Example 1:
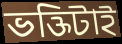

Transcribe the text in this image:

ভক্তিটাই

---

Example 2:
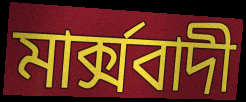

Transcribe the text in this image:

মার্ক্সবাদী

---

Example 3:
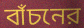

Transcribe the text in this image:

বাঁচনের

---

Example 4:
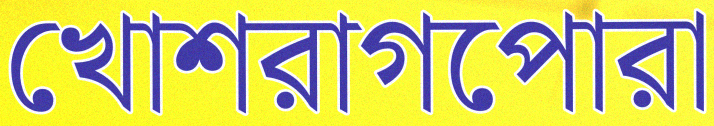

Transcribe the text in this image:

খোশরাগপোরা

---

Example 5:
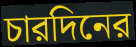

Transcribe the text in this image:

চারদিনের